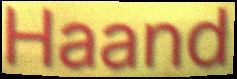
Haand